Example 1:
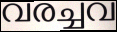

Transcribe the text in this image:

വരച്ചവ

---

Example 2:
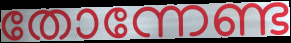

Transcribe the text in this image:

തോന്നേണ്ട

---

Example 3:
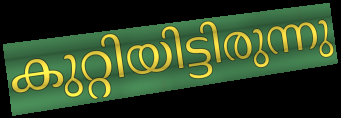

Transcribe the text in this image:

കുറ്റിയിട്ടിരുന്നു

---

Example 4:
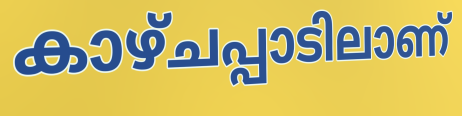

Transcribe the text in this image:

കാഴ്ചപ്പാടിലാണ്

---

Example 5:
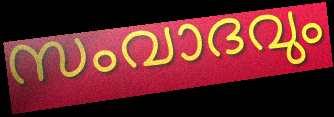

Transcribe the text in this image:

സംവാദവും